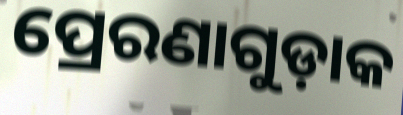
ପ୍ରେରଣାଗୁଡ଼ାକ